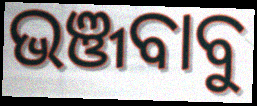
ଭଞ୍ଜବାବୁ